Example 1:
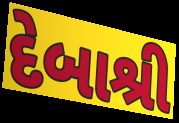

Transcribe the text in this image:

દેબાશ્રી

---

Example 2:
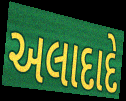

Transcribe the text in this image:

અલાદાદે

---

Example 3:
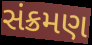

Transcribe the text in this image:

સંક્રમણ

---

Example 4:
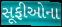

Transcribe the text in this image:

સૂફીઓના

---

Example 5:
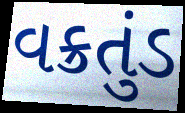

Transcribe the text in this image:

વક્રતુંડ